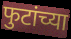
फुटांच्‍या